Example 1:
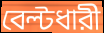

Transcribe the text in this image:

বেল্টধারী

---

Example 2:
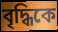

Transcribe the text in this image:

বৃদ্ধিকে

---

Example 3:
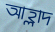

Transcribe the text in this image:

আহ্লাদ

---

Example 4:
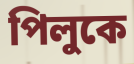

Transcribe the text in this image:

পিলুকে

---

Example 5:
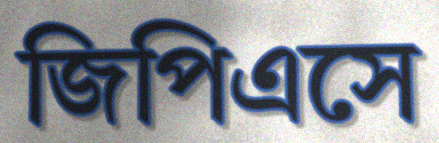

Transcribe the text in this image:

জিপিএসে